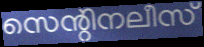
സെന്റിനലീസ്